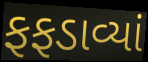
ફફડાવ્યાં